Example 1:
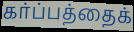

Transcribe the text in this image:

கர்ப்பத்தைக்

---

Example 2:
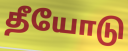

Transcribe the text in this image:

தீயோடு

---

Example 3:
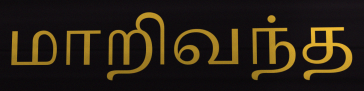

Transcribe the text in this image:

மாறிவந்த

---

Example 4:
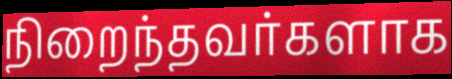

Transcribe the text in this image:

நிறைந்தவர்களாக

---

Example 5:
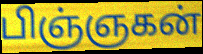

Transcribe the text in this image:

பிஞ்ஞகன்